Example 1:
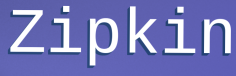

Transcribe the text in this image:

Zipkin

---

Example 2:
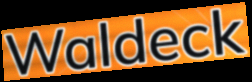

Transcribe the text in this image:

Waldeck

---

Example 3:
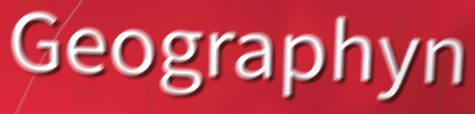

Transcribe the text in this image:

Geographyn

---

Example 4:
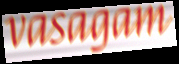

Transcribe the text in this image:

vasagam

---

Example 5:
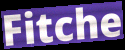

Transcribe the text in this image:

Fitche